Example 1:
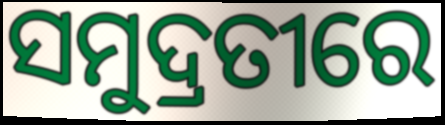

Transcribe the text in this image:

ସମୁଦ୍ରତୀରେ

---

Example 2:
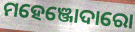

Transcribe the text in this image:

ମହେଞ୍ଜୋଦାରୋ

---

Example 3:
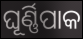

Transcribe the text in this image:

ଘୂର୍ଣ୍ଣିପାକ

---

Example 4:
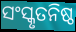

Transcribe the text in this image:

ସଂସ୍କୃତନିଷ୍ଠ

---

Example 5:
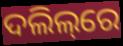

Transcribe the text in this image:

ଦଲିଲ୍‌ରେ